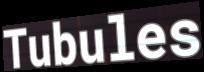
Tubules